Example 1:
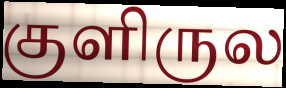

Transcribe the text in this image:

குளிருல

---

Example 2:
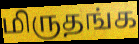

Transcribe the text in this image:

மிருதங்க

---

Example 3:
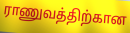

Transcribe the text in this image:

ராணுவத்திற்கான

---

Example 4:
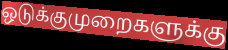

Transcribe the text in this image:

ஒடுக்குமுறைகளுக்கு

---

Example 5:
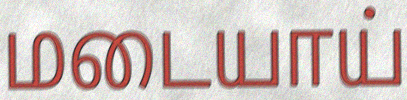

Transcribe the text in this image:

மடையாய்